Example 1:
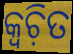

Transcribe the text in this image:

କ୍ୱଚ଼ିତ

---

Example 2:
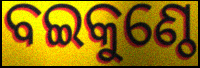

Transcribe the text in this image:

ବଇକୁଣ୍ଠେ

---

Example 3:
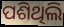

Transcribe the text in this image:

ପଶିଥିଲି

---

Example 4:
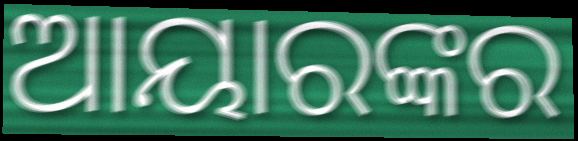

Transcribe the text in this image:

ଆୟାରଙ୍କର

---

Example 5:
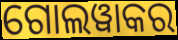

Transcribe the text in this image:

ଗୋଲୱାକର